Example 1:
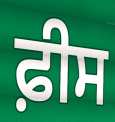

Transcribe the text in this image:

ਫ਼ੀਸ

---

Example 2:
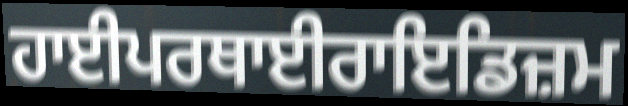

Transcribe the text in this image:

ਹਾਈਪਰਥਾਈਰਾਇਡਿਜ਼ਮ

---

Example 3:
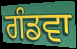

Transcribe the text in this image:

ਗੰਡਵਾ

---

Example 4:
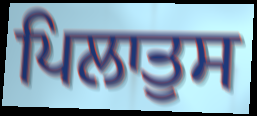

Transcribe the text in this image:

ਪਿਲਾਤੁਸ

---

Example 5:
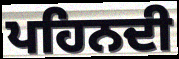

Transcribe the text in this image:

ਪਹਿਨਦੀ